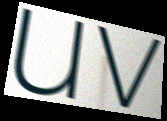
uv